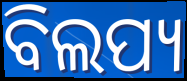
ବିଲପ୍ୟ